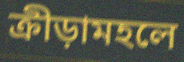
ক্রীড়ামহলে